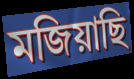
মজিয়াছি